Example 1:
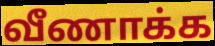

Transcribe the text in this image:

வீணாக்க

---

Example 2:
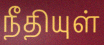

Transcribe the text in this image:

நீதியுள்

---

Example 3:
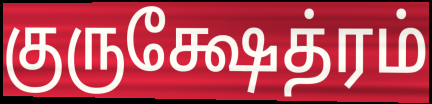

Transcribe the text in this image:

குருக்ஷேத்ரம்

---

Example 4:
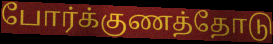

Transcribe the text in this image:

போர்க்குணத்தோடு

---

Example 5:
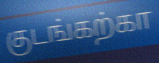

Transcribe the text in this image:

குடங்கற்கா